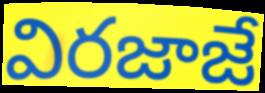
విరజాజే